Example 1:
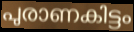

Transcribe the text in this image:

പുരാണകിട്ടം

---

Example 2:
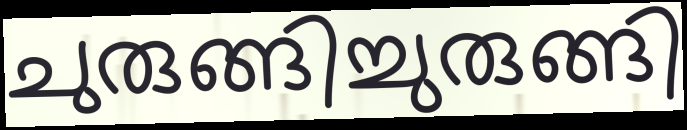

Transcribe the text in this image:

ചുരുങ്ങിച്ചുരുങ്ങി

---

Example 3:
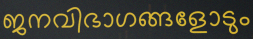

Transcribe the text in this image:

ജനവിഭാഗങ്ങളോടും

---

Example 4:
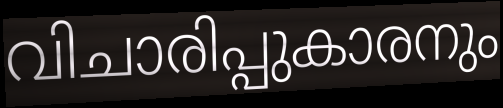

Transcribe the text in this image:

വിചാരിപ്പുകാരനും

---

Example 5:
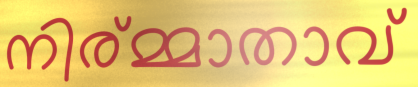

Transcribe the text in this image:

നിര്മ്മാതാവ്